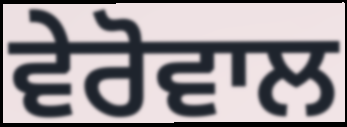
ਵੇਰੋਵਾਲ